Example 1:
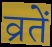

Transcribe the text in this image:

व्रतें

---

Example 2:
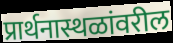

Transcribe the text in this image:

प्रार्थनास्थळांवरील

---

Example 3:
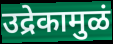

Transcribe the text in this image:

उद्रेकामुळं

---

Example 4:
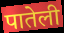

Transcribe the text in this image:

पातेली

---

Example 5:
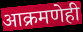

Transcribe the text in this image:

आक्रमणेही